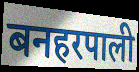
बनहरपाली